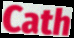
Cath